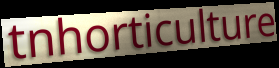
tnhorticulture